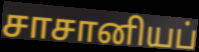
சாசானியப்